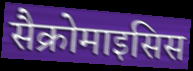
सैक्रोमाइसिस